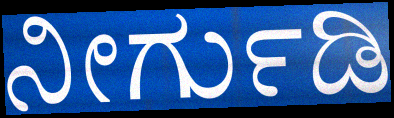
ನೀರ್ಗುಡಿ